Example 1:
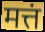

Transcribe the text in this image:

मत्तं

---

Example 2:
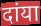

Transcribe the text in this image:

दांया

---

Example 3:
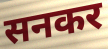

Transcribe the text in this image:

सनकर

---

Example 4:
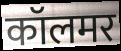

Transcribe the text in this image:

कॉलमर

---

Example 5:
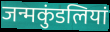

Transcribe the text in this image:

जन्मकुंडलियां